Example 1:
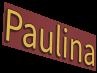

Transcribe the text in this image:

Paulina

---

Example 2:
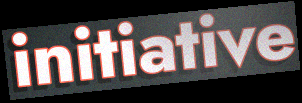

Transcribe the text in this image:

initiative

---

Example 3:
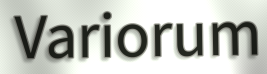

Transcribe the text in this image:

Variorum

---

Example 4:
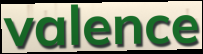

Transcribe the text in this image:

valence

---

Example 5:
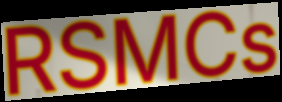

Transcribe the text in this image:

RSMCs